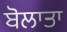
ਬੋਲਾਤਾ